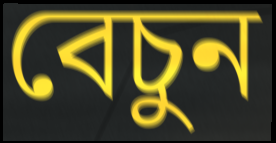
বেচুন